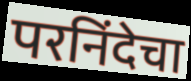
परनिंदेचा